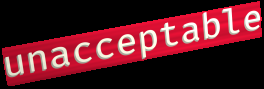
unacceptable